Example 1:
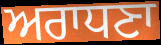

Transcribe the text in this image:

ਅਰਾਧਣਾ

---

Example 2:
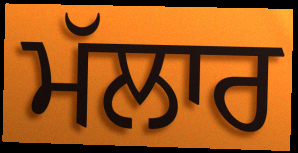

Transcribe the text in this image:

ਮੱਲਾਰ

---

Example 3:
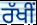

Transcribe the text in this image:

ਰੱਖੀਂ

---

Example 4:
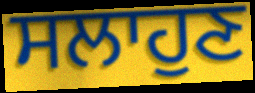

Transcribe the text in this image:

ਸਲਾਹੁਣ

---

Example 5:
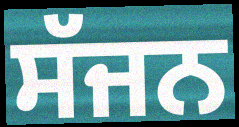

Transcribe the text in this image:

ਸੱਜਨ